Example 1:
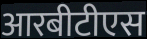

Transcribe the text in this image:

आरबीटीएस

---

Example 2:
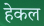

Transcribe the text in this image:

हेकल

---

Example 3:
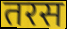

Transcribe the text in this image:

तरस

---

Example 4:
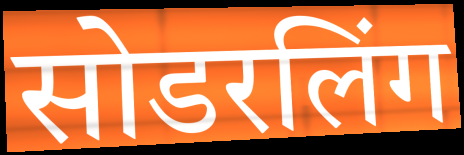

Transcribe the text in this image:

सोडरलिंग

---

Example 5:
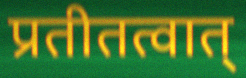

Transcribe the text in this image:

प्रतीतत्वात्